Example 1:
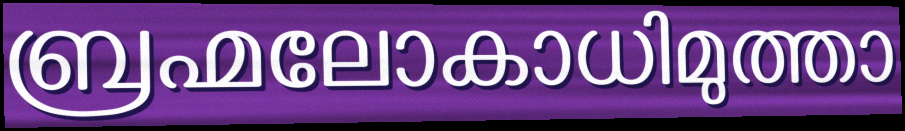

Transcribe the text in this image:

ബ്രഹ്മലോകാധിമുത്താ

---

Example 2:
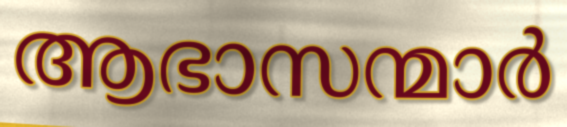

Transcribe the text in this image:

ആഭാസന്മാർ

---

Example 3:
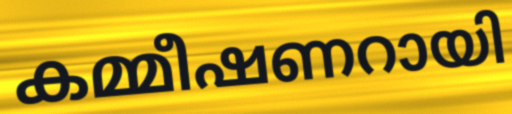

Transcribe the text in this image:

കമ്മീഷണറായി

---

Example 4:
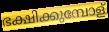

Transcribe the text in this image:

ഭക്ഷിക്കുമ്പോള്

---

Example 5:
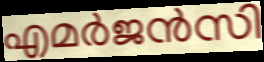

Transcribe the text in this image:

എമർജൻസി